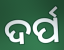
ଦର୍ପ